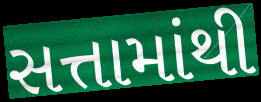
સત્તામાંથી